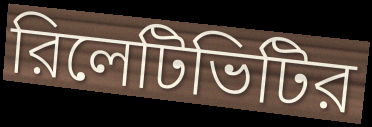
রিলেটিভিটির